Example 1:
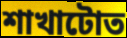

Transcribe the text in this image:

শাখাটোত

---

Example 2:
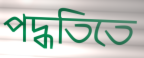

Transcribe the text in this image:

পদ্ধতিতে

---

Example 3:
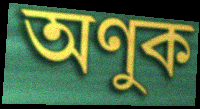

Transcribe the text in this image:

অণুক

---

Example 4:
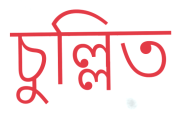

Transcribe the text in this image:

চুল্লিত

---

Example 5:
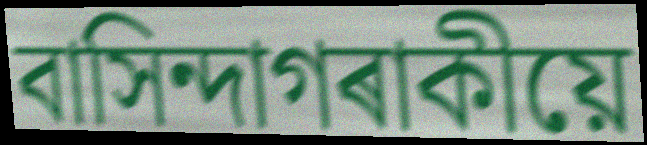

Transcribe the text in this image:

বাসিন্দাগৰাকীয়ে